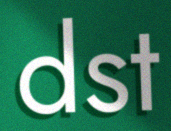
dst